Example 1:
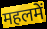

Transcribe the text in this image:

महलमें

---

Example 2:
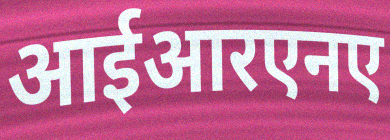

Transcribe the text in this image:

आईआरएनए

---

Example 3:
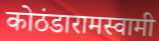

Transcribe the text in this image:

कोठंडारामस्वामी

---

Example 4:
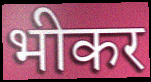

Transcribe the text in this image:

भीकर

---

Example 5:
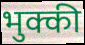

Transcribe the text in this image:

भुक्की